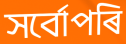
সৰ্বোপৰি